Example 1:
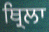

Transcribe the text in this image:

ਥ੍ਰਿਲਾ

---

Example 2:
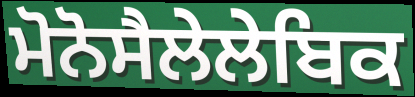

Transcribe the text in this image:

ਮੋਨੋਸੈਲੇਲੇਬਿਕ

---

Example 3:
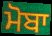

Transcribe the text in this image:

ਮੋਬਾ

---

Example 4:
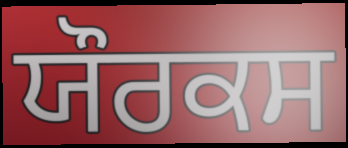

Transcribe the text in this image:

ਯੌਰਕਸ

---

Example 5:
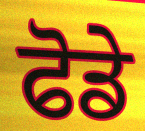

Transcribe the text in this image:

ਫੋਡੇ